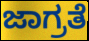
ಜಾಗ್ರತೆ